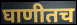
घाणीतच